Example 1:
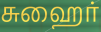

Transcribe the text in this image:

சுஹைர்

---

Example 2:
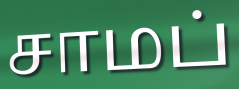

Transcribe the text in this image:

சாமப்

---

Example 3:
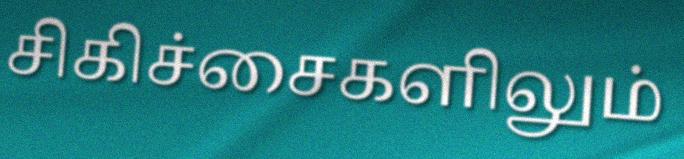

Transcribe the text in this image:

சிகிச்சைகளிலும்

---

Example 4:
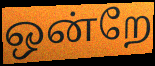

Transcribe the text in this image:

ஒன்றே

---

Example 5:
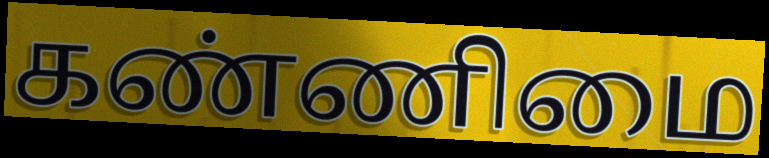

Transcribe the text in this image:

கண்ணிமை